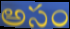
అసం